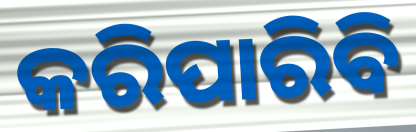
କରିପାରିବି